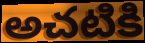
అచటికి